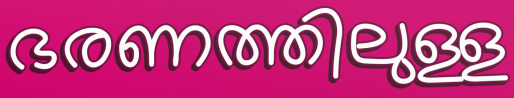
ഭരണത്തിലുള്ള